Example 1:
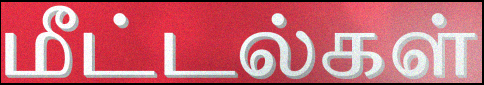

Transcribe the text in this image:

மீட்டல்கள்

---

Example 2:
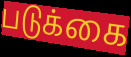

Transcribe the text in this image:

படுக்கை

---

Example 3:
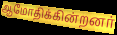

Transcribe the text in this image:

ஆமோதிக்கின்றனர்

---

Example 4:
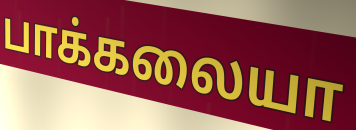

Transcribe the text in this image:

பாக்கலையா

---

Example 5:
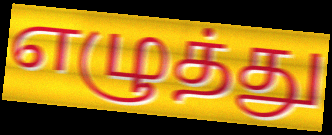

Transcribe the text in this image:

எழுத்து